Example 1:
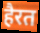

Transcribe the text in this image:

हैरत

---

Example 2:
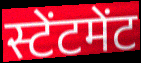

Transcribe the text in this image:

स्टेंटमेंट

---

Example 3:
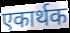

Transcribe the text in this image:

एकार्थक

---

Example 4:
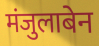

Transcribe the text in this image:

मंजुलाबेन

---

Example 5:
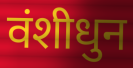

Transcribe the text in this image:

वंशीधुन